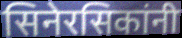
सिनेरसिकांनी